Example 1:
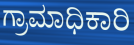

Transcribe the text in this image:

ಗ್ರಾಮಾಧಿಕಾರಿ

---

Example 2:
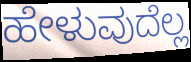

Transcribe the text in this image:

ಹೇಳುವುದೆಲ್ಲ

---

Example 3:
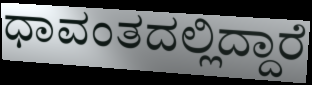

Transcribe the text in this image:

ಧಾವಂತದಲ್ಲಿದ್ದಾರೆ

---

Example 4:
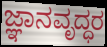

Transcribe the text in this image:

ಜ್ಞಾನವೃದ್ಧರ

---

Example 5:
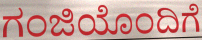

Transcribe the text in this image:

ಗಂಜಿಯೊಂದಿಗೆ